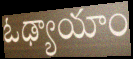
ఓఢ్యాయాం